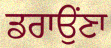
ਡਰਾਉਂਣਾ